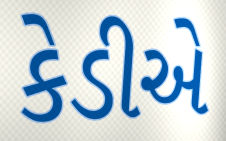
કેડીએ